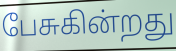
பேசுகின்றது